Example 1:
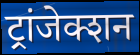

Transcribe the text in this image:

ट्रांजेक्शन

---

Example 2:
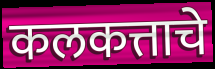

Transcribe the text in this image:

कलकत्ताचे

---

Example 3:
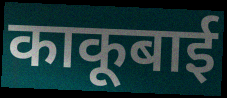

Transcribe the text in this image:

काकूबाई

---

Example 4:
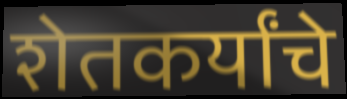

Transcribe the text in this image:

शेतकर्यांचे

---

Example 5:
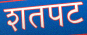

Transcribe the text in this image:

शतपट